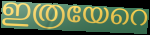
ഇത്രയേറെ